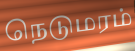
நெடுமரம்